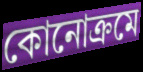
কোনোক্রমে